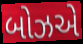
બોઝએ